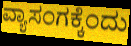
ವ್ಯಾಸಂಗಕ್ಕೆಂದು